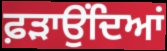
ਫ਼ੜਾਉਂਦਿਆਂ